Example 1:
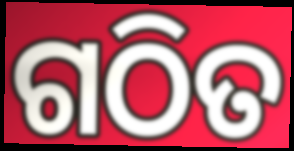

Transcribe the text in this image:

ଗଠିତ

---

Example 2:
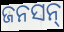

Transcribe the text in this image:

ଜନସନ୍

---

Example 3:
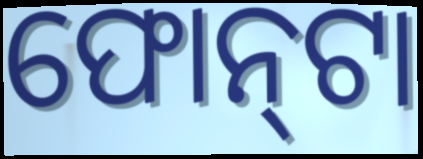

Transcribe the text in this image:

ଫୋନ୍‍ଟା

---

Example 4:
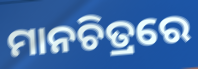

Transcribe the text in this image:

ମାନଚିତ୍ରରେ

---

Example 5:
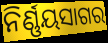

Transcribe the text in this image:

ନିର୍ଣ୍ଣୟସାଗର